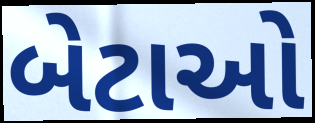
બેટાઓ